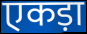
एकड़ा